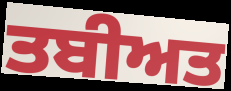
ਤਬੀਅਤ